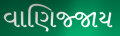
વાણિજ્જાય